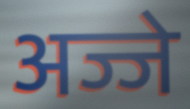
अज्जे